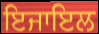
ਇਜਾਇਲ